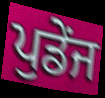
ਪੁਡੇਂਜ